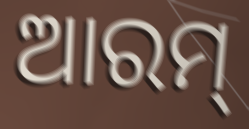
ଆରମ୍